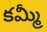
కమ్మీ